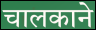
चालकाने